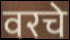
वरचे